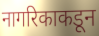
नागरिकाकडून